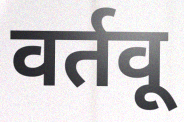
वर्तवू